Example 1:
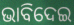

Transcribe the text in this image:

ଭାବିଦେଇ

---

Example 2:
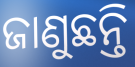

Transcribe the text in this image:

ଜାଣୁଛନ୍ତି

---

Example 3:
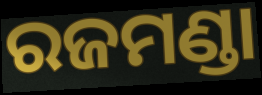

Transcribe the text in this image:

ରଜମଣ୍ଡା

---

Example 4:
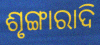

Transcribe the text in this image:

ଶୃଙ୍ଗାରାଦି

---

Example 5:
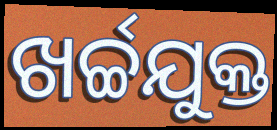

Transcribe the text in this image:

ଖର୍ଚ୍ଚଯୁକ୍ତ